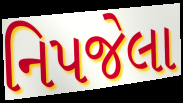
નિપજેલા